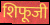
शिफूजी